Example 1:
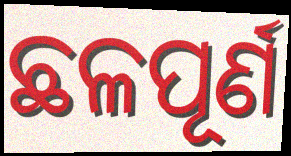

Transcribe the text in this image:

ଛଳପୂର୍ଣ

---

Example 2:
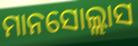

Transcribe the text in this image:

ମାନସୋଲ୍ଲାସ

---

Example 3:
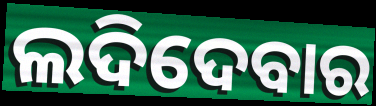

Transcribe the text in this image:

ଲଦିଦେବାର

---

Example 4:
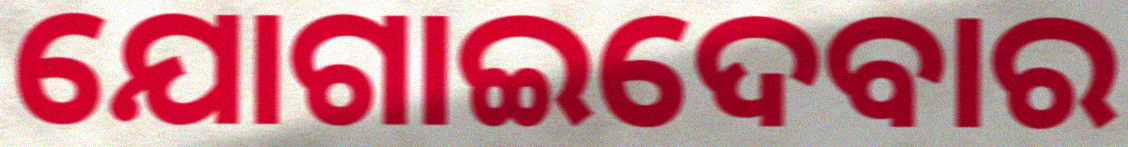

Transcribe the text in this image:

ଯୋଗାଇଦେବାର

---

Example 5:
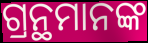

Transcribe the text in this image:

ଗ୍ରନ୍ଥମାନଙ୍କ